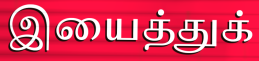
இயைத்துக்